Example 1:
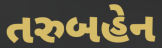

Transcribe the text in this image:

તરુબહેન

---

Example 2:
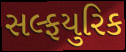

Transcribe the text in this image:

સલ્ફયુરિક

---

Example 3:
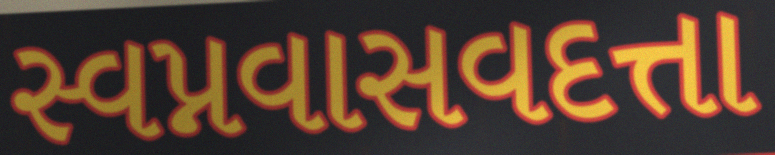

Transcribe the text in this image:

સ્વપ્નવાસવદત્તા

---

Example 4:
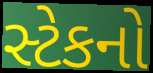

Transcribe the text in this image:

સ્ટેકનો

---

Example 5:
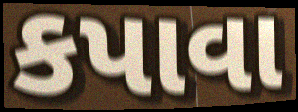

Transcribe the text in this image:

કપાવા